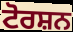
ਟੋਰਸ਼ਨ